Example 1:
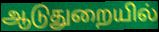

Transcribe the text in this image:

ஆடுதுறையில்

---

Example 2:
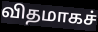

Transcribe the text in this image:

விதமாகச்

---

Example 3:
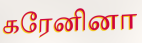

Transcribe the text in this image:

கரேனினா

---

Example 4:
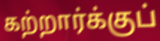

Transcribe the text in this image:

கற்றார்க்குப்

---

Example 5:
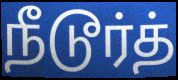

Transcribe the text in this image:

நீடூர்த்